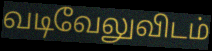
வடிவேலுவிடம்